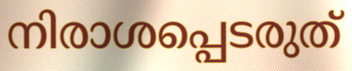
നിരാശപ്പെടരുത്